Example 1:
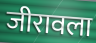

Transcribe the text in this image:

जीरावला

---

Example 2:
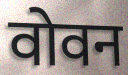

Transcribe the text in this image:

वोवन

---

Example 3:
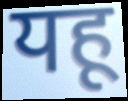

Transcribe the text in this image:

यहू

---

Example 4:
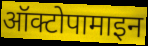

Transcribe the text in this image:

ऑक्टोपामाइन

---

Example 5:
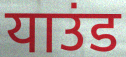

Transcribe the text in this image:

याउंड